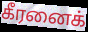
கீரனைக்